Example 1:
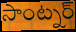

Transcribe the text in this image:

సాంట్నర్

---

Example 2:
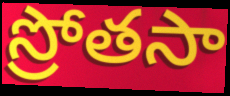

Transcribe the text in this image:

స్రోతసా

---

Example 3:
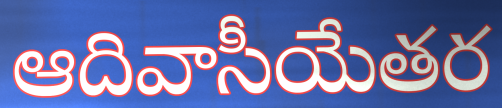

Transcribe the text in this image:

ఆదివాసీయేతర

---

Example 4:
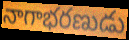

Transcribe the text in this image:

నాగాభరణుడు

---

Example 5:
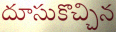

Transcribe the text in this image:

దూసుకొచ్చిన